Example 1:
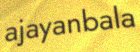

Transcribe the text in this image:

ajayanbala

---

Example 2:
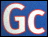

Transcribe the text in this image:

Gc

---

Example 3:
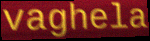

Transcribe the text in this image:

vaghela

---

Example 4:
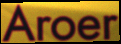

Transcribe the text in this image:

Aroer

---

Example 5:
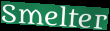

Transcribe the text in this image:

Smelter